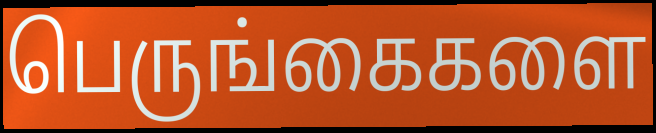
பெருங்கைகளை